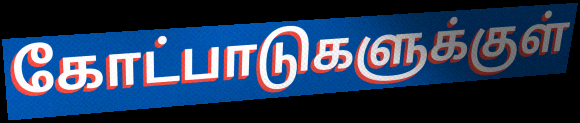
கோட்பாடுகளுக்குள்